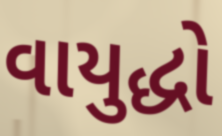
વાયુદ્ધો